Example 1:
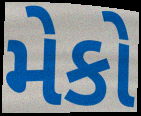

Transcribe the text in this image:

મેકો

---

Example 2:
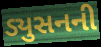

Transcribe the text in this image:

ડ્યુસનની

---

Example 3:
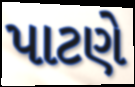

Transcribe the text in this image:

પાટણે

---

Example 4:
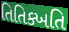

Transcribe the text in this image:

તિતિક્ખતિ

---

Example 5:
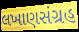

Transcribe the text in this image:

લખાણસંગ્રહ